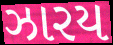
ઝારય